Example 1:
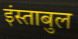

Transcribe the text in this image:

इंस्ताबुल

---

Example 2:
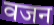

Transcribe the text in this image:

वजन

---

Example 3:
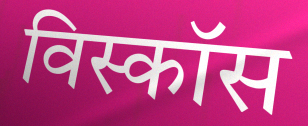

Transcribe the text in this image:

विस्कॉस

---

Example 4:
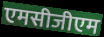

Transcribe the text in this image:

एमसीजीएम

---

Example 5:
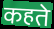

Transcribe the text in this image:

कहते